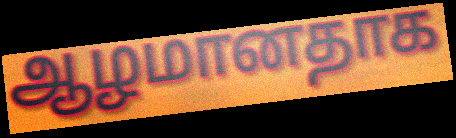
ஆழமானதாக